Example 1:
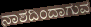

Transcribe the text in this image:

ನಾಶದಿಂದಾಗುವ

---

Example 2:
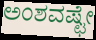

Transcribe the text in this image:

ಅಂಶವಷ್ಟೇ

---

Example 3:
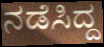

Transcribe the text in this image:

ನಡೆಸಿದ್ದ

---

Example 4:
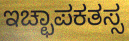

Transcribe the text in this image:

ಇಚ್ಛಾಪಕತಸ್ಸ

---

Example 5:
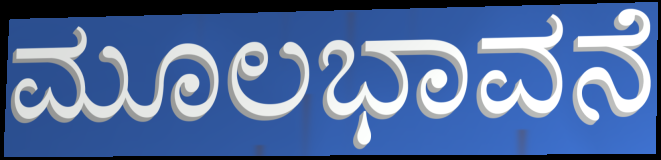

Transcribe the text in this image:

ಮೂಲಭಾವನೆ